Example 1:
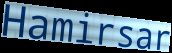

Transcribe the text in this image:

Hamirsar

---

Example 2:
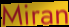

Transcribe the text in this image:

Miran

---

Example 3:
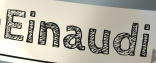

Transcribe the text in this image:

Einaudi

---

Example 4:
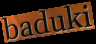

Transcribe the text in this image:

baduki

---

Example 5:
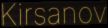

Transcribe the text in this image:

Kirsanov